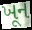
ખૂન